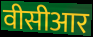
वीसीआर